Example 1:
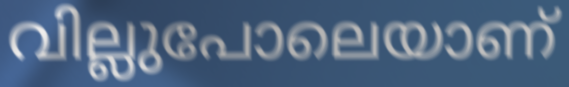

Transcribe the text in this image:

വില്ലുപോലെയാണ്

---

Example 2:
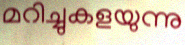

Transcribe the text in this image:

മറിച്ചുകളയുന്നു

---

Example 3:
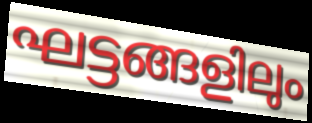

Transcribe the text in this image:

ഘട്ടങ്ങളിലും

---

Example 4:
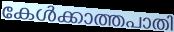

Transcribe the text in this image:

കേൾക്കാത്തപാതി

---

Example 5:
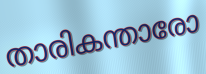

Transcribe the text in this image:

താരികന്താരോ